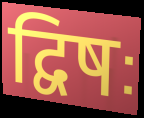
द्विषः